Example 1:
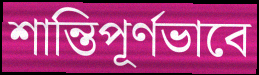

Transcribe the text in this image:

শান্তিপূর্ণভাবে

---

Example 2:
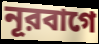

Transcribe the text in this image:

নূরবাগে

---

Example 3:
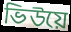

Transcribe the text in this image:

ভিউয়ে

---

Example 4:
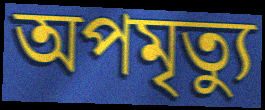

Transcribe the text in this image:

অপমৃত্যু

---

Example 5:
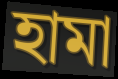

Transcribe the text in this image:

হামা